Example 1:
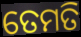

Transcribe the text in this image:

ତେମତି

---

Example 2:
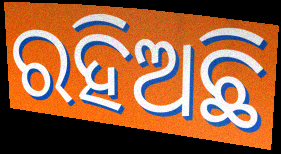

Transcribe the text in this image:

ରହିଅଛି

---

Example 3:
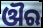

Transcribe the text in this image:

ଔର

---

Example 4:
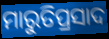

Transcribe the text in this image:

ମାରୁତିପ୍ରସାଦ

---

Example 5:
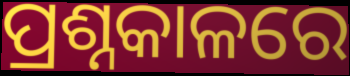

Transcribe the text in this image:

ପ୍ରଶ୍ନକାଳରେ